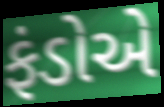
ફંડોએ